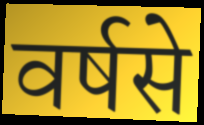
वर्षसे